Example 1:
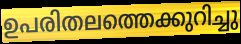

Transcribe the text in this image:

ഉപരിതലത്തെക്കുറിച്ചു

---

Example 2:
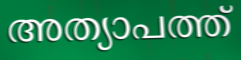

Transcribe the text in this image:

അത്യാപത്ത്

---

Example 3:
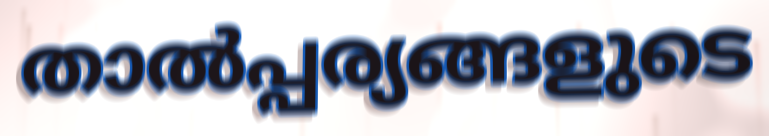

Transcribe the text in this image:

താൽപ്പര്യങ്ങളുടെ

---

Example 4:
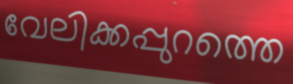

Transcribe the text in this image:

വേലിക്കപ്പുറത്തെ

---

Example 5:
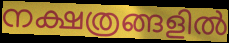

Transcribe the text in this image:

നക്ഷത്രങ്ങളിൽ